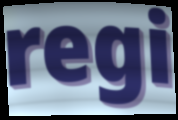
regi